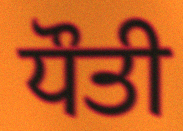
ਧੌਤੀ